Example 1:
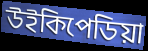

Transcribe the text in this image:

উইকিপেডিয়া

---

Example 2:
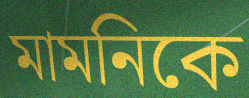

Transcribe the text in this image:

মামনিকে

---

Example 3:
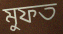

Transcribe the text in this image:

মুফত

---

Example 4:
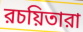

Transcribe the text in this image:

রচয়িতারা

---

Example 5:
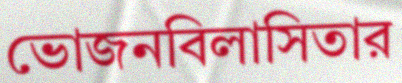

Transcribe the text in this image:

ভোজনবিলাসিতার